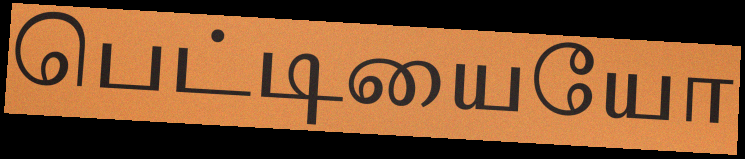
பெட்டியையோ